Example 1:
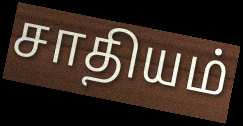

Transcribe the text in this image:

சாதியம்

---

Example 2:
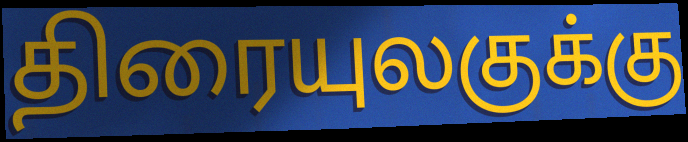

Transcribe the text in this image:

திரையுலகுக்கு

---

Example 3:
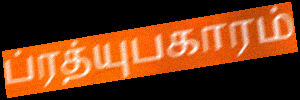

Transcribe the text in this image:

ப்ரத்யுபகாரம்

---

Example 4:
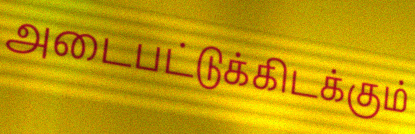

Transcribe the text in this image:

அடைபட்டுக்கிடக்கும்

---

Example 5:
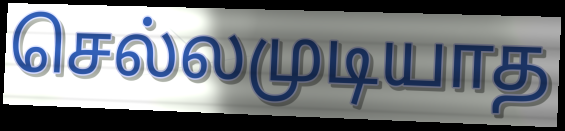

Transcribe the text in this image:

செல்லமுடியாத